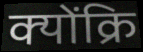
क्योंक्रि